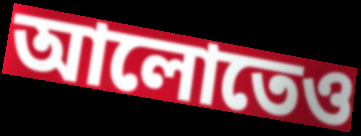
আলোতেও